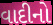
વાદીનો